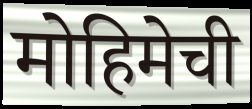
मोहिमेची